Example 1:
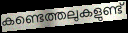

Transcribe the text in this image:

കണ്ടെത്തലുകളുണ്ട്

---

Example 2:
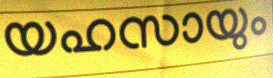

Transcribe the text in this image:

യഹസായും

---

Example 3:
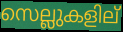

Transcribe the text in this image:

സെല്ലുകളില്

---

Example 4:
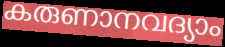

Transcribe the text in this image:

കരുണാനവദ്യാം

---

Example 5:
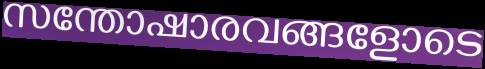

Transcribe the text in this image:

സന്തോഷാരവങ്ങളോടെ